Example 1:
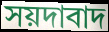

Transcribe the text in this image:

সয়দাবাদ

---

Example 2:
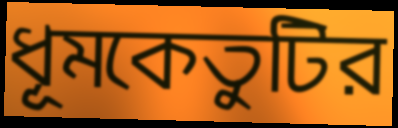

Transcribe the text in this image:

ধূমকেতুটির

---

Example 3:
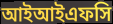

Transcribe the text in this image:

আইআইএফসি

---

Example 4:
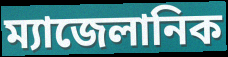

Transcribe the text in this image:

ম্যাজেলানিক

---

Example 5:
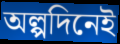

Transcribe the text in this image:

অল্পদিনেই